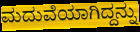
ಮದುವೆಯಾಗಿದ್ದನ್ನು